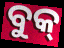
ବୁକ୍